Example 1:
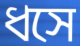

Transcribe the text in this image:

ধসে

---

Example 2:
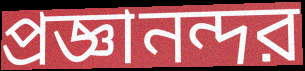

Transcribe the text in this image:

প্রজ্ঞানন্দর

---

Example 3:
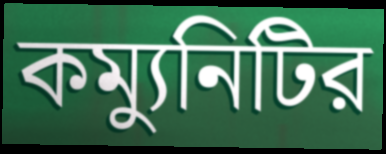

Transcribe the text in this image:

কম্যুনিটির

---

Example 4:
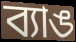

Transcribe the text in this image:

ব্যাঙ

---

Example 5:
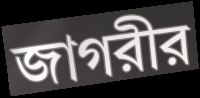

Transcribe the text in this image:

জাগরীর